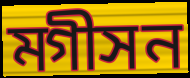
মগীসন